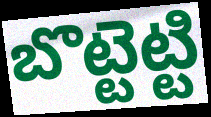
బొట్టెట్టి